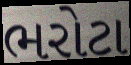
ભરોટા